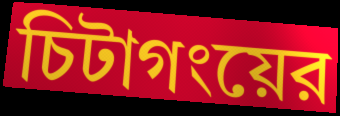
চিটাগংয়ের